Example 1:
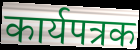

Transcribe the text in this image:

कार्यपत्रक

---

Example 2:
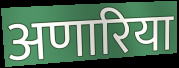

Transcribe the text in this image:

अणारिया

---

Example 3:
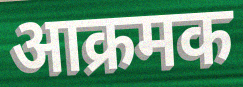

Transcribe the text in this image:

आक्रमक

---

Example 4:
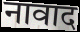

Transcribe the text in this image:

नावाद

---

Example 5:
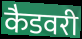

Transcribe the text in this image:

कैडवरी